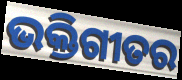
ଭକ୍ତିଗୀତର